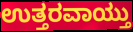
ಉತ್ತರವಾಯ್ತು